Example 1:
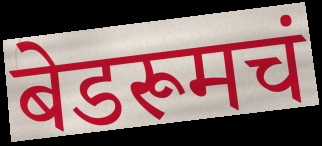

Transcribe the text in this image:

बेडरूमचं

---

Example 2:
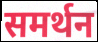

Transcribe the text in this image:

समर्थन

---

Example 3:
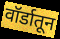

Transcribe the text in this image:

वॉर्डातून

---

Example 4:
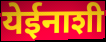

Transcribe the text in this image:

येईनाशी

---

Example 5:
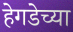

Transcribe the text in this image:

हेगडेच्या